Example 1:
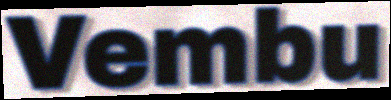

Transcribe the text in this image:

Vembu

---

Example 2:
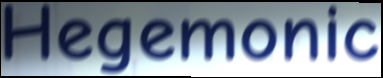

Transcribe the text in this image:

Hegemonic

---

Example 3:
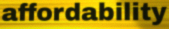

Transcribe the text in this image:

affordability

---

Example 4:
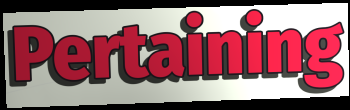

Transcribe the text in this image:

Pertaining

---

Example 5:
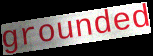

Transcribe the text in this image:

grounded